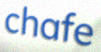
chafe